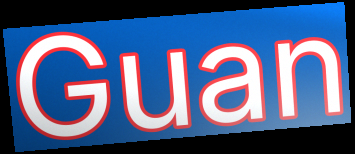
Guan